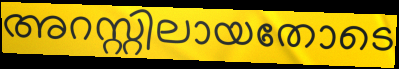
അറസ്റ്റിലായതോടെ